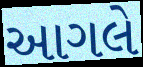
આગલે